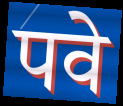
पवे